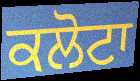
ਕਲੋਟਾ